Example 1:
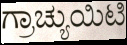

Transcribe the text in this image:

ಗ್ರಾಚ್ಯುಯಿಟಿ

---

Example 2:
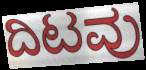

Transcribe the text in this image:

ದಿಟವು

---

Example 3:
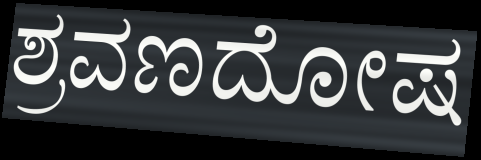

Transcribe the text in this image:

ಶ್ರವಣದೋಷ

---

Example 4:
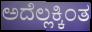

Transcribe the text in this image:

ಅದೆಲ್ಲಕ್ಕಿಂತ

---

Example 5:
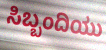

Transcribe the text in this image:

ಸಿಬ್ಬಂದಿಯು